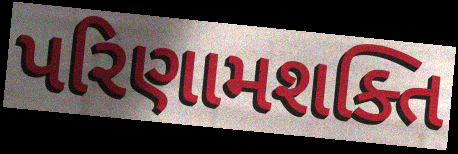
પરિણામશક્તિ